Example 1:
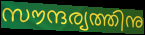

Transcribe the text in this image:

സൗന്ദര്യത്തിനു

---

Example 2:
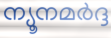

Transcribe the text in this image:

ന്യൂനമർദ്ദ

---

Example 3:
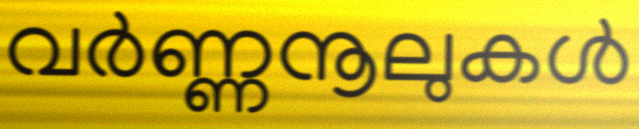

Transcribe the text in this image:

വർണ്ണനൂലുകൾ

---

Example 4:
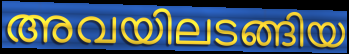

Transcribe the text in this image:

അവയിലടങ്ങിയ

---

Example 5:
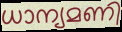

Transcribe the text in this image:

ധാന്യമണി